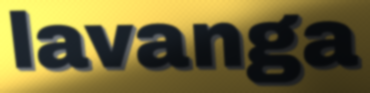
lavanga